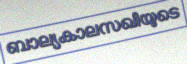
ബാല്യകാലസഖിയുടെ